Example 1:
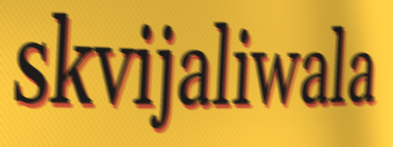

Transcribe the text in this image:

skvijaliwala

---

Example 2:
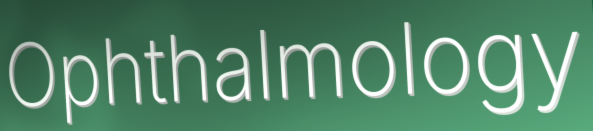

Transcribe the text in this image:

Ophthalmology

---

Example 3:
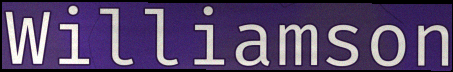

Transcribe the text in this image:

Williamson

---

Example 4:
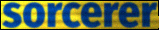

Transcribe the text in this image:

sorcerer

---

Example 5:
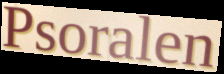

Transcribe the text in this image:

Psoralen